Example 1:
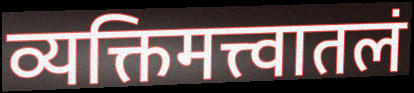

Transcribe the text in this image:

व्यक्तिमत्त्वातलं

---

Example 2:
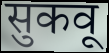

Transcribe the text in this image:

सुकवू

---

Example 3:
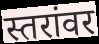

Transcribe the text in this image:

स्तरांवर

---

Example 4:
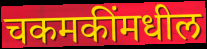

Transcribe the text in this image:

चकमकींमधील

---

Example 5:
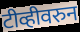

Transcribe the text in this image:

टीव्हीवरुन